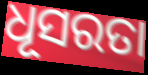
ଧୂସରତା